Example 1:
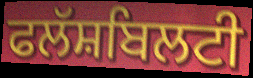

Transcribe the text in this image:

ਫਲੱਸ਼ਬਿਲਟੀ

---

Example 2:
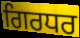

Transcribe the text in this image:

ਗਿਰਧਰ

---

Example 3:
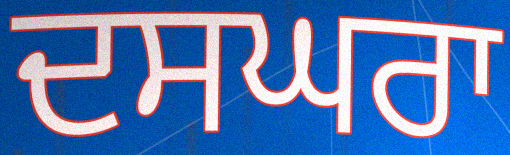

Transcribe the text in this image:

ਦਸਘਰਾ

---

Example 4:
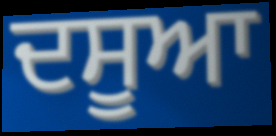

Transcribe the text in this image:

ਦਸੂਆ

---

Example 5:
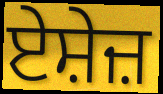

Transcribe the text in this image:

ਏਸ਼ੇਜ਼